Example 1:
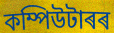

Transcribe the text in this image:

কম্পিউটাৰৰ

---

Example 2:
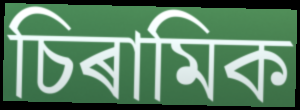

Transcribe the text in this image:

চিৰামিক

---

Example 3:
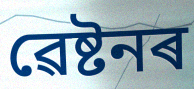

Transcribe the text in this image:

ৱেষ্টনৰ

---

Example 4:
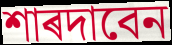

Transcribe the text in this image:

শাৰদাবেন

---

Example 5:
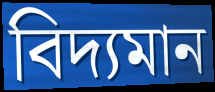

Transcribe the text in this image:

বিদ্যমান